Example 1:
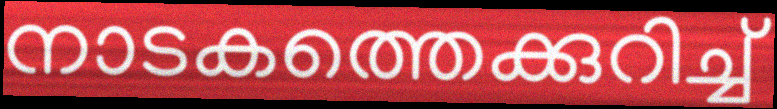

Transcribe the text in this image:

നാടകത്തെക്കുറിച്ച്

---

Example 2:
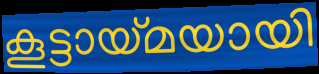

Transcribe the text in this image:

കൂട്ടായ്മയായി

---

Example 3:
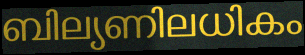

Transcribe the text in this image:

ബില്യണിലധികം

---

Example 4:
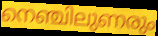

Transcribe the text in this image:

നെഞ്ചിലുണരും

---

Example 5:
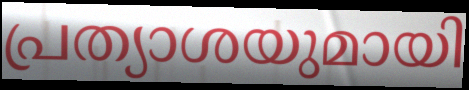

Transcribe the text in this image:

പ്രത്യാശയുമായി